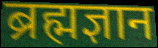
ब्रह्मज्ञान